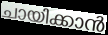
ചായിക്കാൻ